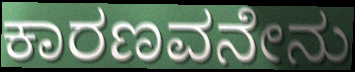
ಕಾರಣವನೇನು